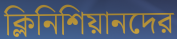
ক্লিনিশিয়ানদের